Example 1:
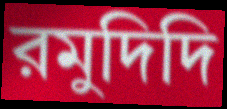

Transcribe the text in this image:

রমুদিদি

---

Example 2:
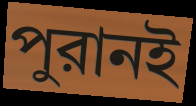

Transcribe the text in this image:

পুরানই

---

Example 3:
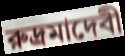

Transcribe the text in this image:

রুদ্রমাদেবী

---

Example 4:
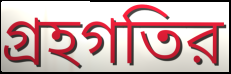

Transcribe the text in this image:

গ্রহগতির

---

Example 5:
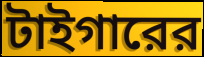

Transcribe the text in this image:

টাইগারের